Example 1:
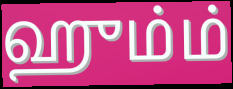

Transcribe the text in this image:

ஹும்ம்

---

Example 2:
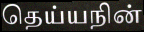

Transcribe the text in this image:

தெய்யநின்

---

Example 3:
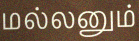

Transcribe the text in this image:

மல்லனும்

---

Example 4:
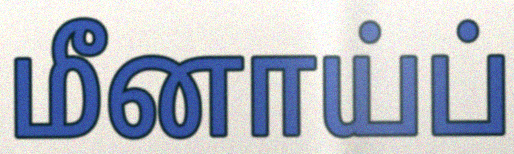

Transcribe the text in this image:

மீனாய்ப்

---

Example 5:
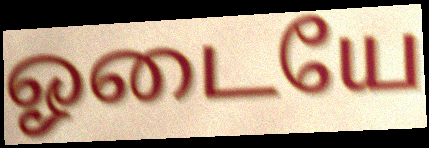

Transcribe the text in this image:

ஓடையே